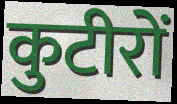
कुटीरों